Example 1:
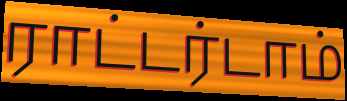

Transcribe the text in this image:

ராட்டர்டாம்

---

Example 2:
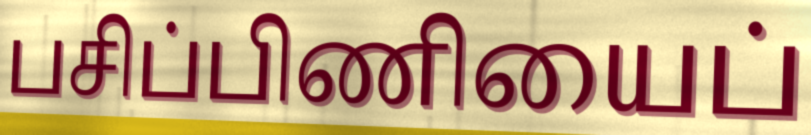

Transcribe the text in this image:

பசிப்பிணியைப்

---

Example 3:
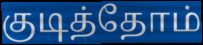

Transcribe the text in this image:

குடித்தோம்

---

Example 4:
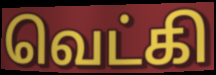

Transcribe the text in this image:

வெட்கி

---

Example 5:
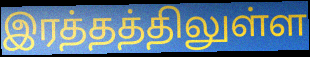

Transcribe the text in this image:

இரத்தத்திலுள்ள